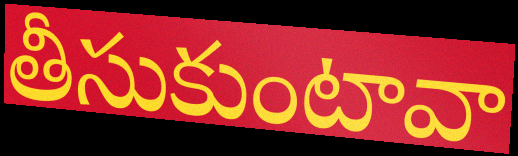
తీసుకుంటావా